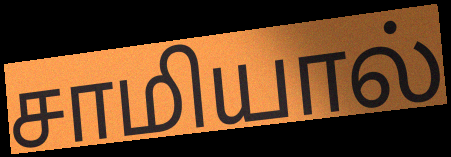
சாமியால்